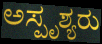
ಅಸ್ಪೃಶ್ಯರು